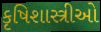
કૃષિશાસ્ત્રીઓ